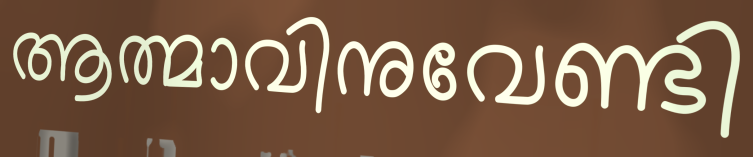
ആത്മാവിനുവേണ്ടി